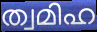
ത്വമിഹ